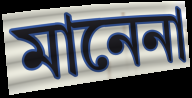
মানেনা